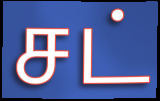
சட்